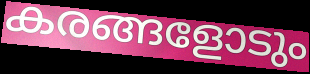
കരങ്ങളോടും